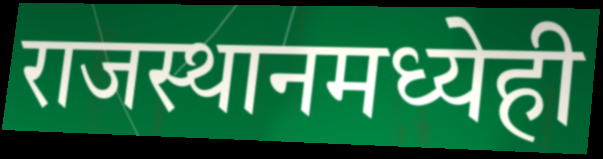
राजस्थानमध्येही